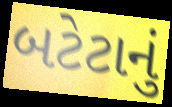
બટેટાનું